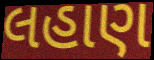
લહાણ